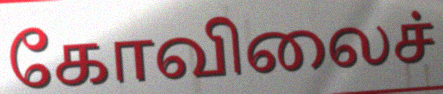
கோவிலைச்